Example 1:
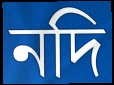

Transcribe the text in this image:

নদি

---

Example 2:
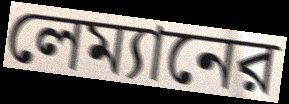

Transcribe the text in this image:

লেম্যানের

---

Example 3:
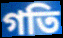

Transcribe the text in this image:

গতি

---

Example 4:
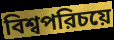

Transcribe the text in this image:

বিশ্বপরিচয়ে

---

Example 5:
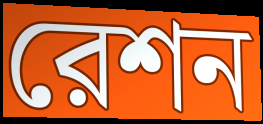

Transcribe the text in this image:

রেশন